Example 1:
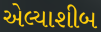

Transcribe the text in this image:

એલ્યાશીબ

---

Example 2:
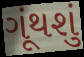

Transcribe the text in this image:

ગૂંથશું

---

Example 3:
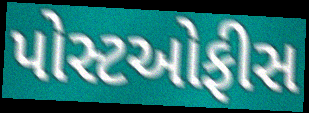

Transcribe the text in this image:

પોસ્ટઓફીસ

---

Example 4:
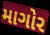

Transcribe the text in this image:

માગોર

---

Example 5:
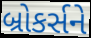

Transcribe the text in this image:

બ્રોકર્સને